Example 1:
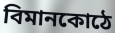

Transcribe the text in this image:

বিমানকোঠে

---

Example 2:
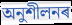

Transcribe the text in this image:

অনুশীলনৰ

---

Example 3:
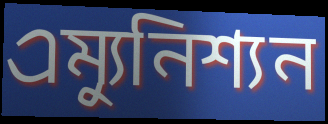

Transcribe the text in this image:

এম্যুনিশ্যন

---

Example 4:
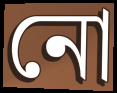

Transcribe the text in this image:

নো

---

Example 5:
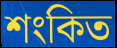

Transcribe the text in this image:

শংকিত